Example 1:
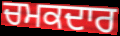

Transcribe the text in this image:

ਚਮਕਦਾਰ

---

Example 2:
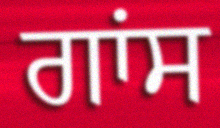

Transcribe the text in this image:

ਗਾਂਸ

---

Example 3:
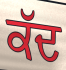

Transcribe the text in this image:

ਕੱਦ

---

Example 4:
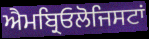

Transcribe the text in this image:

ਐਮਬ੍ਰਿਓਲੋਜਿਸਟਾਂ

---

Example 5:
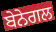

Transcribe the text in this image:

ਬੇਨੇਗਲ